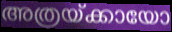
അത്രയ്‌ക്കായോ